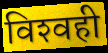
विश्वही